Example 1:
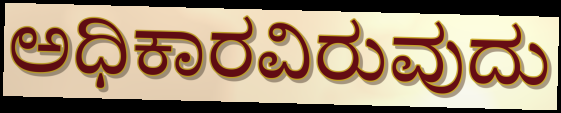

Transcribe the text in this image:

ಅಧಿಕಾರವಿರುವುದು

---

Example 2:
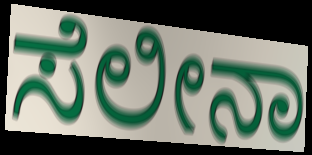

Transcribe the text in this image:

ಸೆಲೀನಾ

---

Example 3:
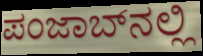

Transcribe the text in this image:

ಪಂಜಾಬ್‌ನಲ್ಲಿ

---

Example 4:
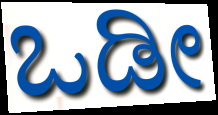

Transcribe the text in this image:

ಒಡೀ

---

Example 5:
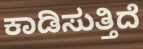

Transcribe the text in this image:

ಕಾಡಿಸುತ್ತಿದೆ